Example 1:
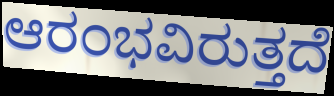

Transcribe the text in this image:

ಆರಂಭವಿರುತ್ತದೆ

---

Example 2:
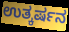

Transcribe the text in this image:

ಉತ್ಕರ್ಷನ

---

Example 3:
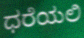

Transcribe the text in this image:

ಧರೆಯಲಿ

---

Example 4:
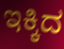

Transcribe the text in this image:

ಇಕ್ಕಿದ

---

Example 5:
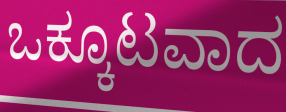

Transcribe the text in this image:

ಒಕ್ಕೂಟವಾದ